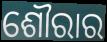
ଶୌରାର